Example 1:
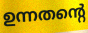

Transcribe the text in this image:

ഉന്നതന്റെ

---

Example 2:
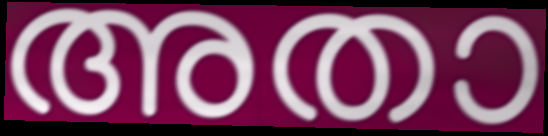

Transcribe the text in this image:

അതാ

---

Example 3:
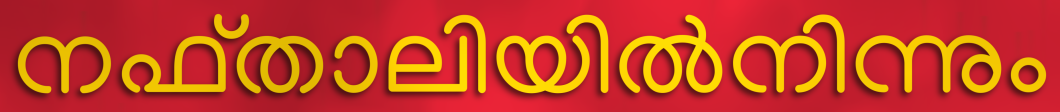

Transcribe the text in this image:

നഫ്താലിയിൽനിന്നും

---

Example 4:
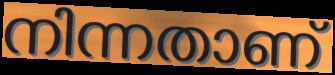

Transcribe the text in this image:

നിന്നതാണ്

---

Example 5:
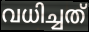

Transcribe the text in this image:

വധിച്ചത്